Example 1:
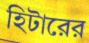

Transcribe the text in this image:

হিটারের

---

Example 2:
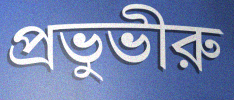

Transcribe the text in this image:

প্রভুভীরু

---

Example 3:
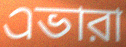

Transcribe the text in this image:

এভারা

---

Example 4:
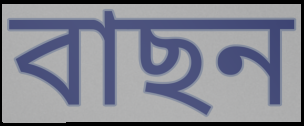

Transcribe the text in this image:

বাছন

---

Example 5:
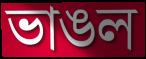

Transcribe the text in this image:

ভাঙল